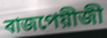
বাজপেয়ীজী